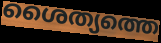
ശൈത്യത്തെ